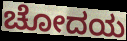
ಚೋದಯ